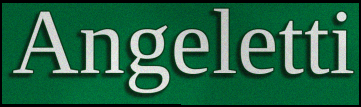
Angeletti